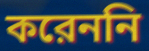
করেননি